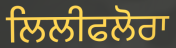
ਲਿਲੀਫਲੋਰਾ